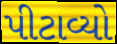
પીટાવ્યો